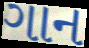
ગાન